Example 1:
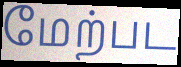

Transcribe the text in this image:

மேற்பட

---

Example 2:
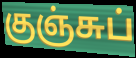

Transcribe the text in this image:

குஞ்சுப்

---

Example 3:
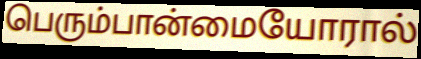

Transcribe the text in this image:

பெரும்பான்மையோரால்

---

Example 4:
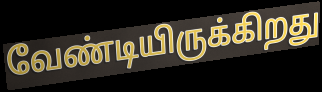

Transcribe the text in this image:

வேண்டியிருக்கிறது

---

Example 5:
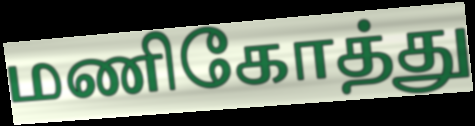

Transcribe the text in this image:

மணிகோத்து